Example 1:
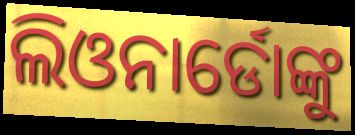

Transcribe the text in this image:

ଲିଓନାର୍ଡୋଙ୍କୁ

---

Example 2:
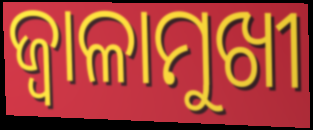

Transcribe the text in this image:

ଜ୍ୱାଳାମୁଖୀ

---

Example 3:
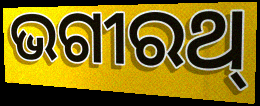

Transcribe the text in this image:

ଭଗୀରଥ୍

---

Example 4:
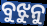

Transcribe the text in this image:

ବୁଝୁନୁ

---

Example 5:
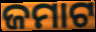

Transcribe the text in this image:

ଜମାଟ